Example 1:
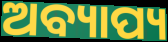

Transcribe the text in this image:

ଅବ୍ୟାପ୍ୟ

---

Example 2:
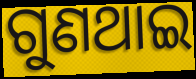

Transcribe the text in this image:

ଗୁଣଥାଇ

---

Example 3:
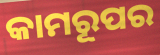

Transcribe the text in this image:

କାମରୂପର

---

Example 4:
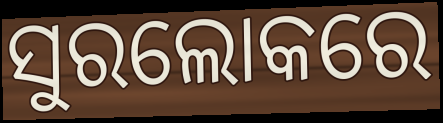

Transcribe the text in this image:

ସୁରଲୋକରେ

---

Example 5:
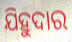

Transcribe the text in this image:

ଯିହୁଦାର